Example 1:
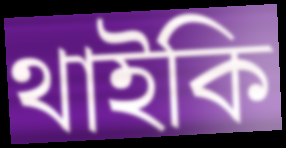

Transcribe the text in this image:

থাইকি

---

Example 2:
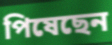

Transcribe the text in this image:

পিষেছেন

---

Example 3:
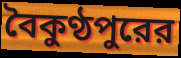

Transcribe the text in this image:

বৈকুণ্ঠপুরের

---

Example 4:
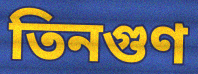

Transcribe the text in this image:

তিনগুণ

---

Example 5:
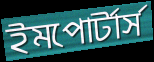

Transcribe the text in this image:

ইমপোর্টার্স